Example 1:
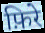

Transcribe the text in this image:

फ़िरे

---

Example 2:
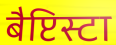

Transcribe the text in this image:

बैप्टिस्टा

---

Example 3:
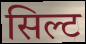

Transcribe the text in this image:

सिल्ट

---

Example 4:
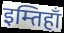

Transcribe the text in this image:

इम्तिहाँ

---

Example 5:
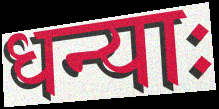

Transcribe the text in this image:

धन्याः